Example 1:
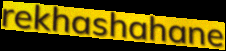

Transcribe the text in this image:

rekhashahane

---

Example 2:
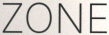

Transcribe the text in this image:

ZONE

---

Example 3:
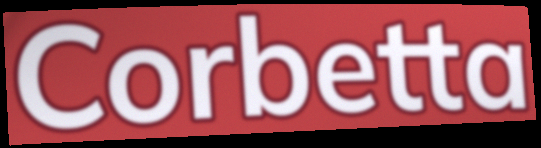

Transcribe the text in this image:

Corbetta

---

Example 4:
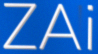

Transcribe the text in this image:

ZAi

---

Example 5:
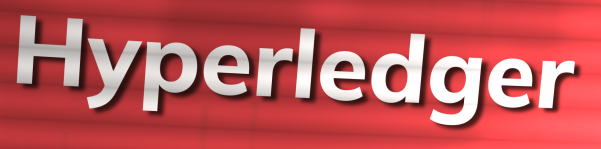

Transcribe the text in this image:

Hyperledger